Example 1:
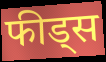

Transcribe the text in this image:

फीड्स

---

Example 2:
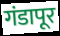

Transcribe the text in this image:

गंडापूर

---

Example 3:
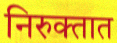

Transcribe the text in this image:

निरुक्तात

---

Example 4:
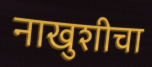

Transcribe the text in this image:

नाखुशीचा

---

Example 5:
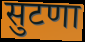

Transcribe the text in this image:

सुटणा